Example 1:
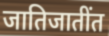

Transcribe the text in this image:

जातिजातींत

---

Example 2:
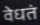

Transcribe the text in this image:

वेधतं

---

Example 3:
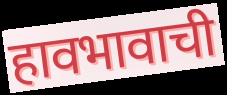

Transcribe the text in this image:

हावभावाची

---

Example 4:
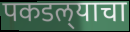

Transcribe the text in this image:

पकडल्याचा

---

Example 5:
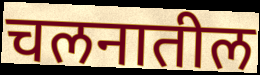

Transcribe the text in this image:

चलनातील